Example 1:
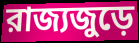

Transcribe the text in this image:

রাজ্যজুড়ে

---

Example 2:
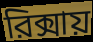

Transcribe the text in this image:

রিক্সায়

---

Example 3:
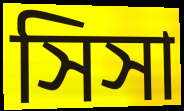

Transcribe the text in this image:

সিসা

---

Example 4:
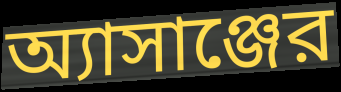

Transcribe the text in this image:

অ্যাসাঞ্জের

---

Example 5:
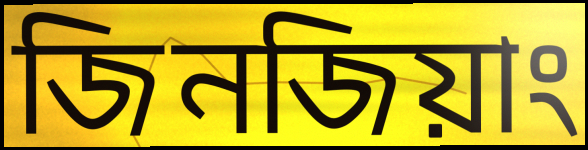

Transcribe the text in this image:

জিনজিয়াং